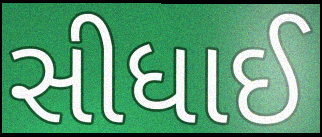
સીધાઈ